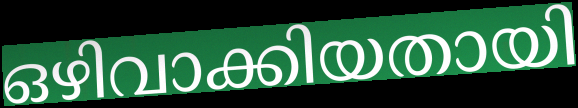
ഒഴിവാക്കിയതായി